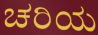
ಚರಿಯ